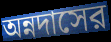
অন্নদাসের